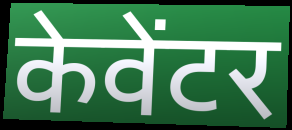
केवेंटर